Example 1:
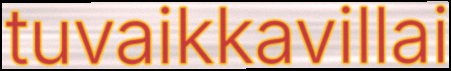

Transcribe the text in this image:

tuvaikkavillai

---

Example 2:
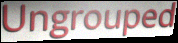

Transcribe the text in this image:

Ungrouped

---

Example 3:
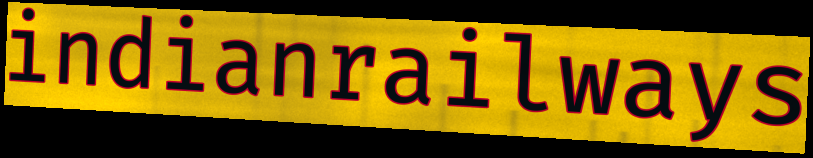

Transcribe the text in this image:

indianrailways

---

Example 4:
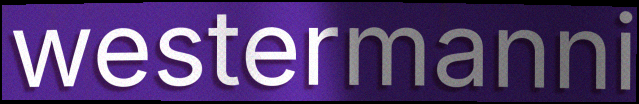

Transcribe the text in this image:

westermanni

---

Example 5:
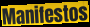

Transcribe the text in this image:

Manifestos